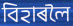
বিহাৰলৈ